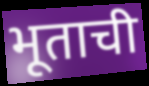
भूताची